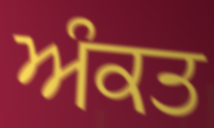
ਅੰਕਤ